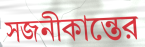
সজনীকান্তের